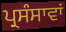
ਪ੍ਰਸੰਸਾਵਾਂ